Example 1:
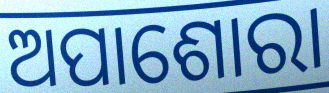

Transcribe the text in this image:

ଅପାଶୋରା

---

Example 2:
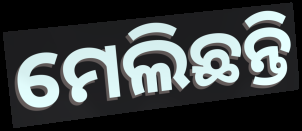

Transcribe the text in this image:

ମେଲିଛନ୍ତି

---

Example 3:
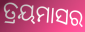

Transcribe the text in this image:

ତ୍ରୟମାସର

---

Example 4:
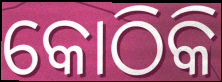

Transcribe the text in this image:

କୋଠିକି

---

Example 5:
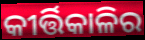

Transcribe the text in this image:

କୀର୍ତ୍ତିକାଳିର